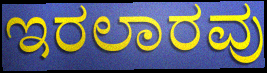
ಇರಲಾರವು